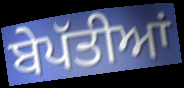
ਬੇਪੱਤੀਆਂ